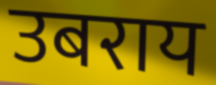
उबराय